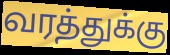
வரத்துக்கு